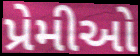
પ્રેમીઓ